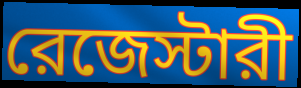
রেজেস্টারী